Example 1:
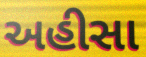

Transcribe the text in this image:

અહીસા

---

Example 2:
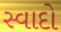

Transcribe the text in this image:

સ્વાદો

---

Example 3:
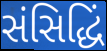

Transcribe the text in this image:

સંસિદ્ધિં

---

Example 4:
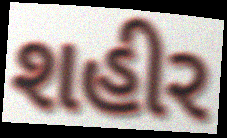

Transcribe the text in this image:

શહીર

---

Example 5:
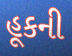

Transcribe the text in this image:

હૂકની